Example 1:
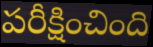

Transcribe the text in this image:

పరీక్షించింది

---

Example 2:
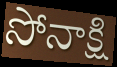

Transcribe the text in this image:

సోనాక్షి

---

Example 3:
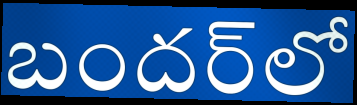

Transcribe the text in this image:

బందర్‌లో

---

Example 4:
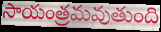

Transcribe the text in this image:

సాయంత్రమవుతుంది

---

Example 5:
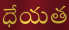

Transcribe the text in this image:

ధేయత